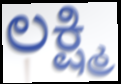
ಲಕ್ಷ್ಮಿ